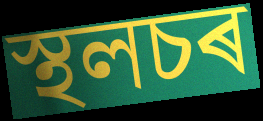
স্থলচৰ